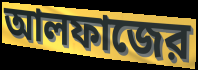
আলফাজের